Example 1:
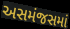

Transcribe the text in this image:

અસમંજસમાં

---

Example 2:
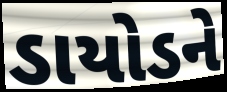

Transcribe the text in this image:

ડાયોડને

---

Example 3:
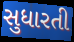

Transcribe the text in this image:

સુધારતી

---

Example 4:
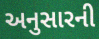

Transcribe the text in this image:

અનુસારની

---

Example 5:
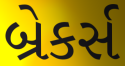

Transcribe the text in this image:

બ્રેકર્સ